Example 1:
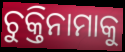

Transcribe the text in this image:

ଚୁକ୍ତିନାମାକୁ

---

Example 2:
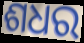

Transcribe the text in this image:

ଶଧର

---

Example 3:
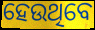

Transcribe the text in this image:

ହେଉଥିବେ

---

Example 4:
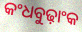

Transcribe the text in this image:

କଂଧବୁଢ଼ାଂକ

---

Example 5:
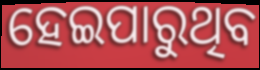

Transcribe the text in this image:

ହେଇପାରୁଥିବ